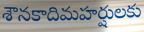
శౌనకాదిమహర్షులకు